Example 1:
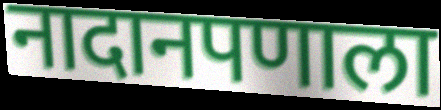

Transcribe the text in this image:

नादानपणाला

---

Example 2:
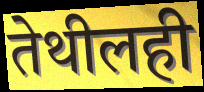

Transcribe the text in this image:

तेथीलही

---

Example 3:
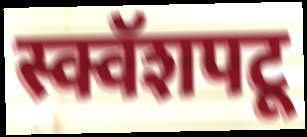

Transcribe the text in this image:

स्क्वॅशपटू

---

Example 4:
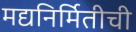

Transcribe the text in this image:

मद्यनिर्मितीची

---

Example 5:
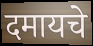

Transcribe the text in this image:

दमायचे